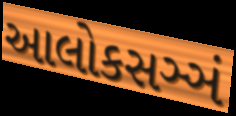
આલોકસઞ્ઞં